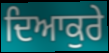
ਦਿਆਕੁਰੇ